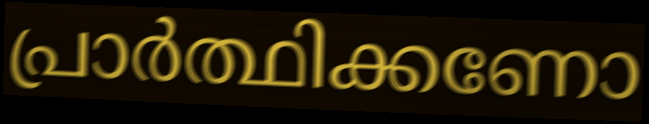
പ്രാർത്ഥിക്കണോ